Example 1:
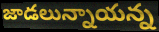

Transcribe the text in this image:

జాడలున్నాయన్న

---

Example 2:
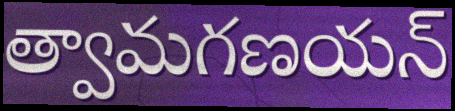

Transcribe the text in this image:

త్వామగణయన్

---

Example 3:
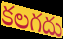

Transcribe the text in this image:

కలగదు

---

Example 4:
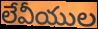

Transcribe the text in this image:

లేవీయుల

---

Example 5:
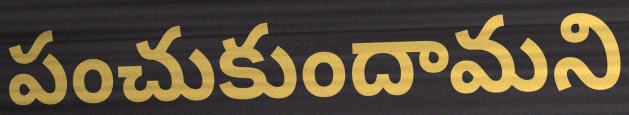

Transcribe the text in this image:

పంచుకుందామని